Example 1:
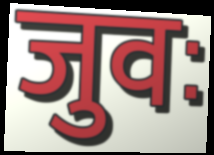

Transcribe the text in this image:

जुवः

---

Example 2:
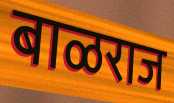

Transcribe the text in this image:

बाळराज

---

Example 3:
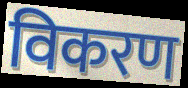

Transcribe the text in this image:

विकरण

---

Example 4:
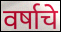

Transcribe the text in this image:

वर्षाचे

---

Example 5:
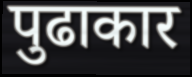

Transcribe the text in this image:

पुढाकार